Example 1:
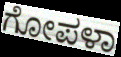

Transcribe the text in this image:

ಗೋಪಳಾ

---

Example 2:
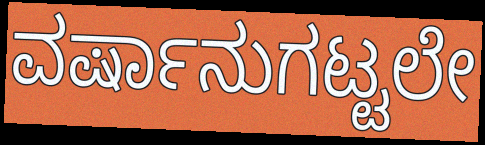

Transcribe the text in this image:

ವರ್ಷಾನುಗಟ್ಟಲೇ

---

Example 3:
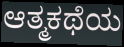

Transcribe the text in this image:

ಆತ್ಮಕಥೆಯ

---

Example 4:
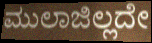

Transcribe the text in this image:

ಮುಲಾಜಿಲ್ಲದೇ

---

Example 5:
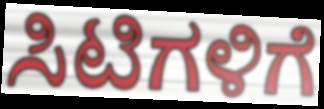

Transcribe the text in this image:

ಸಿಟಿಗಳಿಗೆ